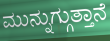
ಮುನ್ನುಗ್ಗುತ್ತಾನೆ